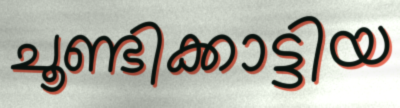
ചൂണ്ടിക്കാട്ടിയ